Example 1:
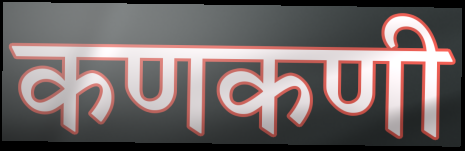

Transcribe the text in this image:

कणकणी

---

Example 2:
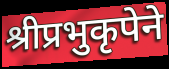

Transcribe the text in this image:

श्रीप्रभुकृपेने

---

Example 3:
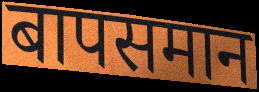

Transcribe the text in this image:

बापसमान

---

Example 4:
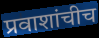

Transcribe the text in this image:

प्रवाशांचीच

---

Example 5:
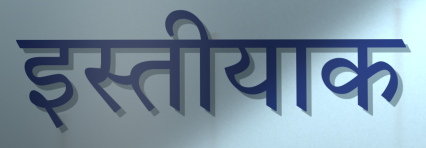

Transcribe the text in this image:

इस्तीयाक